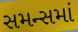
સમન્સમાં